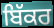
ਬਿੱਕਰ